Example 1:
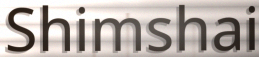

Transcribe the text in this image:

Shimshai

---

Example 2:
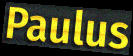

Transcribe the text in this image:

Paulus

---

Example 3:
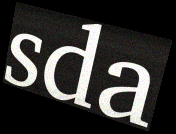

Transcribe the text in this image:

sda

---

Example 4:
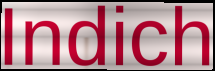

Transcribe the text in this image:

Indich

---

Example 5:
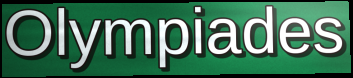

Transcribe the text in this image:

Olympiades